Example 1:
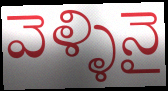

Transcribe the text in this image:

వెళ్ళినై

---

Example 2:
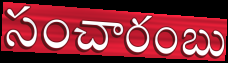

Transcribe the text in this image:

సంచారంబు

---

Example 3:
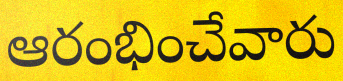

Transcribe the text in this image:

ఆరంభించేవారు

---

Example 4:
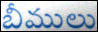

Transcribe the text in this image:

బీములు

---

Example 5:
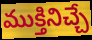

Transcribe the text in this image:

ముక్తినిచ్చే